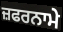
ਜ਼ਫਰਨਾਮੇ